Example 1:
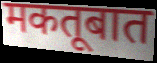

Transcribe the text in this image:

मकतूबात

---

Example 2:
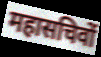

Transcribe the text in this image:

महासचिवों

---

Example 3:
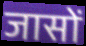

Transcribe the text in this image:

जासों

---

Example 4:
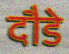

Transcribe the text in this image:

दौडे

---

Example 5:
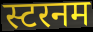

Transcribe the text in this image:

स्टरनम